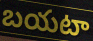
బయటా